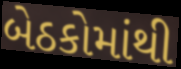
બેઠકોમાંથી